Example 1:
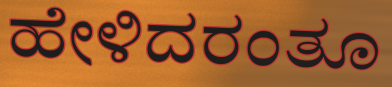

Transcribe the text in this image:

ಹೇಳಿದರಂತೂ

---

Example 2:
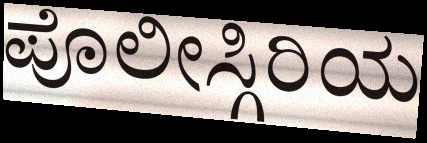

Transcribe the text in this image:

ಪೊಲೀಸ್ಗಿರಿಯ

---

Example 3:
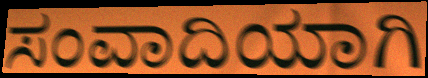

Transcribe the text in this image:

ಸಂವಾದಿಯಾಗಿ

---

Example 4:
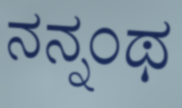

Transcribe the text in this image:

ನನ್ನಂಥ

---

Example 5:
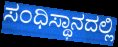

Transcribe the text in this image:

ಸಂಧಿಸ್ಥಾನದಲ್ಲಿ